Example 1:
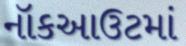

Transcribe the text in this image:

નૉકઆઉટમાં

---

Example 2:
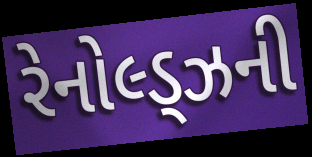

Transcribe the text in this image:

રેનોલ્ડ્ઝની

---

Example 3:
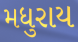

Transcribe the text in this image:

મધુરાય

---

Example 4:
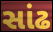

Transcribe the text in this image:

સાંઢ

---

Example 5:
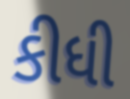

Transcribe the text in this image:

કીધી